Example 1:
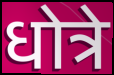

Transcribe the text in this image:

धोत्रे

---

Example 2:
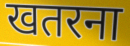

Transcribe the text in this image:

खतरना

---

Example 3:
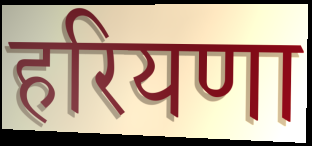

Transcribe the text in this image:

हरियणा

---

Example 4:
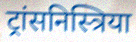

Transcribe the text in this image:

ट्रांसनिस्त्रिया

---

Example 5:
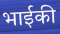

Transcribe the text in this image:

भाईकी